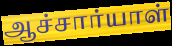
ஆச்சார்யாள்